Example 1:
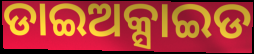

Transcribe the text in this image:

ଡାଇଅକ୍ସାଇଡ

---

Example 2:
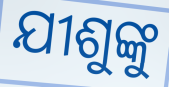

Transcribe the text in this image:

ଯୀଶୁଙ୍କୁ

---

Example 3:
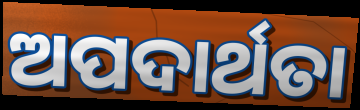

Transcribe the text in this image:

ଅପଦାର୍ଥତା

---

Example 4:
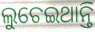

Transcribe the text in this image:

ଲୁଚେଇଥାନ୍ତି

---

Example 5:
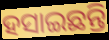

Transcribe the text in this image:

ହସାଇଛନ୍ତି